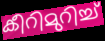
കീറിമുറിച്ച്